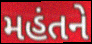
મહંતને